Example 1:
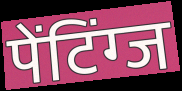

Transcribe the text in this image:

पेंटिंग्ज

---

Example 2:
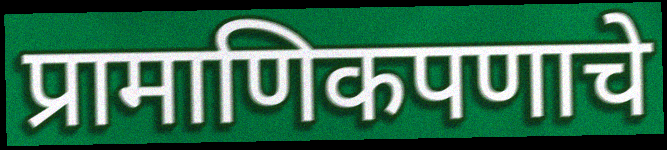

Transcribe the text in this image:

प्रामाणिकपणाचे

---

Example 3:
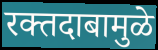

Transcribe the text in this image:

रक्तदाबामुळे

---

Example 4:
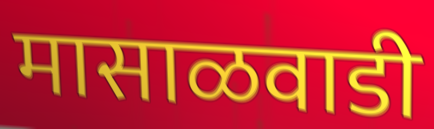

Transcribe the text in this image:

मासाळवाडी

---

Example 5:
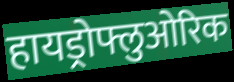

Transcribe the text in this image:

हायड्रोफ्लुओरिक